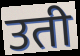
उती